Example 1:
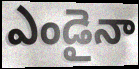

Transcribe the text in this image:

ఎండైనా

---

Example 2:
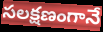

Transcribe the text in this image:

సలక్షణంగానే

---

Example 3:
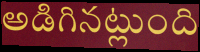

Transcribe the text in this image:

అడిగినట్లుంది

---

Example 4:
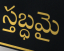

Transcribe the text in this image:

స్తబ్ధమై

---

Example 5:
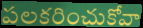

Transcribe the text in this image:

పలకరించుకోవా